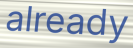
already